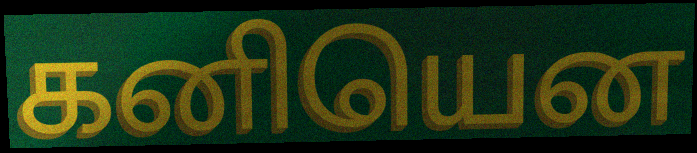
கனியென